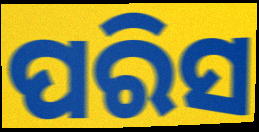
ପରିସ